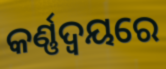
କର୍ଣ୍ଣଦ୍ୱୟରେ